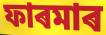
ফাৰমাৰ